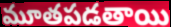
మూతపడతాయి